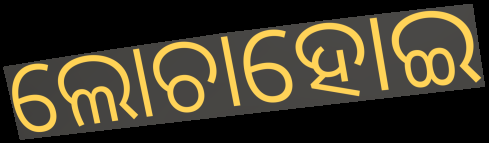
ଲୋଚାହୋଇ